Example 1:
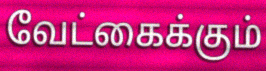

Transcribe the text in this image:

வேட்கைக்கும்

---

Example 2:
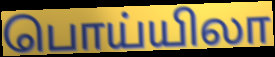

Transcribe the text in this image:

பொய்யிலா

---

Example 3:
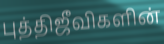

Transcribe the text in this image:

புத்திஜீவிகளின்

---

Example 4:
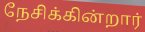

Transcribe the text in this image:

நேசிக்கின்றார்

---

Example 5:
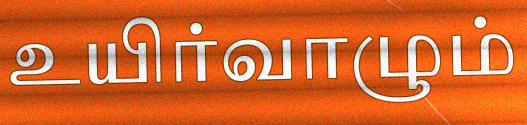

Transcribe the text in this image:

உயிர்வாழும்